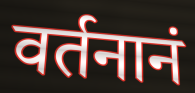
वर्तनानं